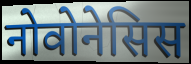
नोवोनेसिस